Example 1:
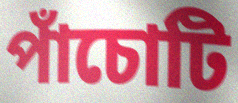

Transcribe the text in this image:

পাঁচোটি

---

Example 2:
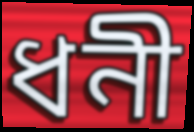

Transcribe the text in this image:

ধনী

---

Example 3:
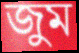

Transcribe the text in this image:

জুম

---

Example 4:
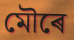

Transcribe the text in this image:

মৌৰে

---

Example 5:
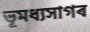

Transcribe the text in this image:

ভূমধ্যসাগৰ